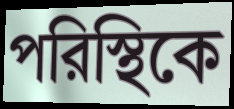
পরিস্থিকে